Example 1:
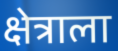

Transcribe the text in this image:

क्षेत्राला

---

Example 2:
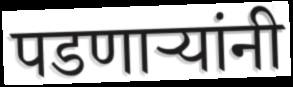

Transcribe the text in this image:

पडणाऱ्यांनी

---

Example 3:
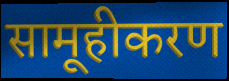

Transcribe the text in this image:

सामूहीकरण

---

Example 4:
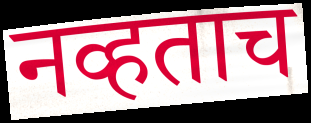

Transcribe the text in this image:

नव्हताच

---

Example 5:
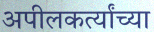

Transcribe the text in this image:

अपीलकर्त्यांच्या